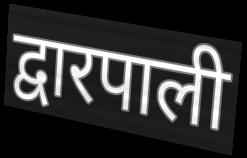
द्वारपाली